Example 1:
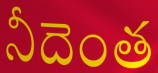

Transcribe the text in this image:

నీదెంత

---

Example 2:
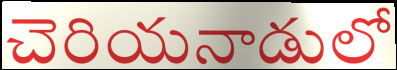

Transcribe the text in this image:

చెరియనాడులో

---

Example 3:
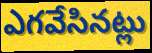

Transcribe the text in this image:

ఎగవేసినట్లు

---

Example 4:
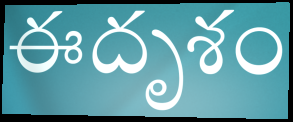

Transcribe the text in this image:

ఈదృశం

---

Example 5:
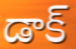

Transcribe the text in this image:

డాక్